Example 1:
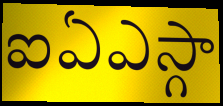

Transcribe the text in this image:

ఐఏఎస్గా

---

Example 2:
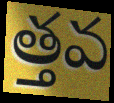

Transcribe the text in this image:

త్తవ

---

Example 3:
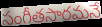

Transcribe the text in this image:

సంగీతసారమనే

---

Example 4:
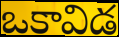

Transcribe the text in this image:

ఒకావిడ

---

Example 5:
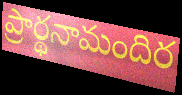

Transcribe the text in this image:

ప్రార్థనామందిర